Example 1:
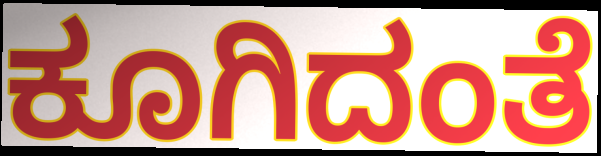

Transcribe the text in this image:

ಕೂಗಿದಂತೆ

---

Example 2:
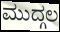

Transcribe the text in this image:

ಮುದ್ಗಲ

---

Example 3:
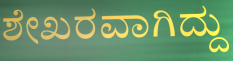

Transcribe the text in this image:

ಶೇಖರವಾಗಿದ್ದು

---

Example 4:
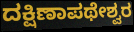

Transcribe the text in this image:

ದಕ್ಷಿಣಾಪಥೇಶ್ವರ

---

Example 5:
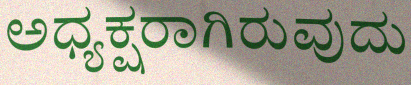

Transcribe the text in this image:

ಅಧ್ಯಕ್ಷರಾಗಿರುವುದು